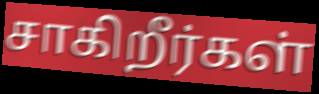
சாகிறீர்கள்